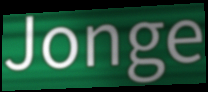
Jonge